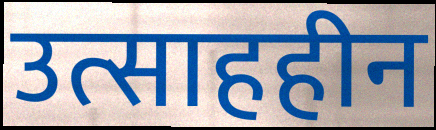
उत्साहहीन